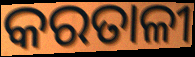
କରତାଳୀ